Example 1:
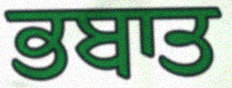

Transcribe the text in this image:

ਭਬਾਤ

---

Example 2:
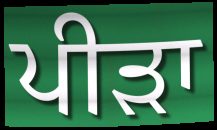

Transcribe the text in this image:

ਪੀੜਾ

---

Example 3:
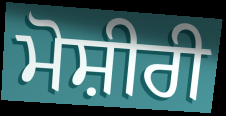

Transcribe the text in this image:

ਮੋਸ਼ੀਰੀ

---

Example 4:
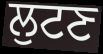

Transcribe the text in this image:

ਲੁਟਣ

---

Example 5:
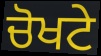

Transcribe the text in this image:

ਚੋਖਟੇ